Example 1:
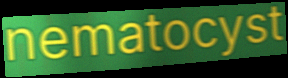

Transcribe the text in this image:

nematocyst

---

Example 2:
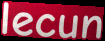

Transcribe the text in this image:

lecun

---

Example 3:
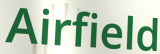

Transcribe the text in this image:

Airfield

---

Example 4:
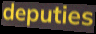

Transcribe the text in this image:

deputies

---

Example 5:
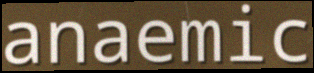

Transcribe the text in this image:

anaemic